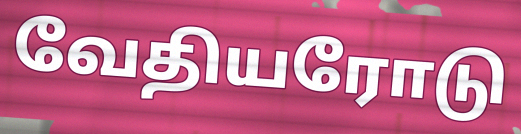
வேதியரோடு